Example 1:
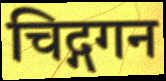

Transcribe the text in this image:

चिद्गगन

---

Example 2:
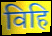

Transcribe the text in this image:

विहि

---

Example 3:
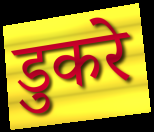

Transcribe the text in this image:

डुकरे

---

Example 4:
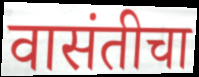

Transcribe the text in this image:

वासंतीचा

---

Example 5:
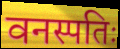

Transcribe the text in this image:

वनस्पतिः